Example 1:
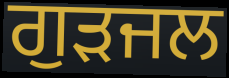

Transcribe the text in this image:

ਗੁੜਜਲ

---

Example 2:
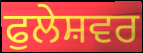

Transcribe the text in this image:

ਫੁਲੇਸ਼ਵਰ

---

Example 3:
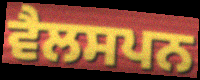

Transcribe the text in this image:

ਵੈਲਸਪਨ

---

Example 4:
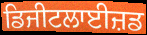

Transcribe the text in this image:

ਡਿਜੀਟਲਾਈਜ਼ਡ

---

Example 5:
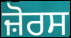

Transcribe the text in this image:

ਜ਼ੋਰਸ